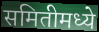
समितीमध्ये